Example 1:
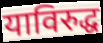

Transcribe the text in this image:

याविरुद्ध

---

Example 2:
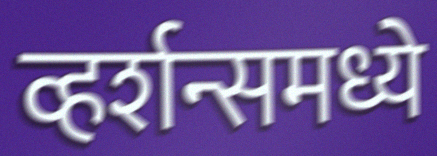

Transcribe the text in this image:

व्हर्शन्समध्ये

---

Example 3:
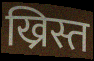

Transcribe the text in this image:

ख्रिस्त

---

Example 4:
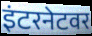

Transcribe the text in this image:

इंटरनेटवर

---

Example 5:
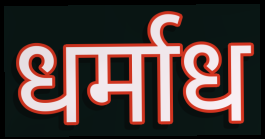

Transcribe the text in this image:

धर्माध